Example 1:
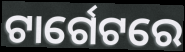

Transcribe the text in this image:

ଟାର୍ଗେଟରେ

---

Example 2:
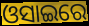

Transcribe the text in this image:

ଓସାଇରେ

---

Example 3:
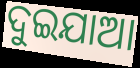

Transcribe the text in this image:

ଦୁଇଯାଆ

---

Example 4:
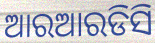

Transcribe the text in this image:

ଆରଆରଡିସି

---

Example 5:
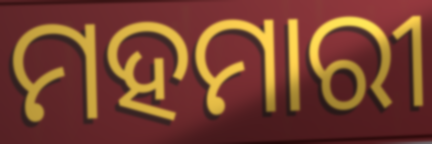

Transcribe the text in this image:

ମହମାରୀ